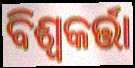
ବିଶ୍ୱକର୍ତ୍ତା